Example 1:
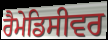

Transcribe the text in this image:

ਰੈਮੇਡਿਸੀਵਰ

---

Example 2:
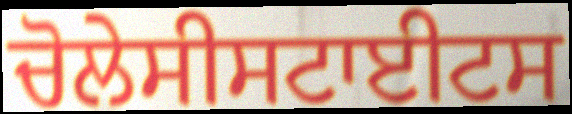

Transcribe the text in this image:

ਚੋਲੇਸੀਸਟਾਈਟਸ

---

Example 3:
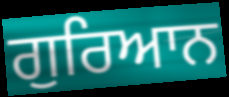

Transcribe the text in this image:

ਗੁਰਿਆਨ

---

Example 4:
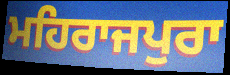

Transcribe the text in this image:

ਮਹਿਰਾਜਪੁਰਾ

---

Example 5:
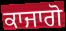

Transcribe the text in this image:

ਕਾਜਾਗੋ